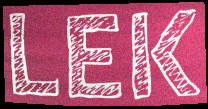
LEK